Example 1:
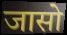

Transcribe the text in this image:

जासो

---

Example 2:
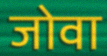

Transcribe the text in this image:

जोवा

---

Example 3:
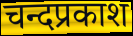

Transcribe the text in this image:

चन्दप्रकाश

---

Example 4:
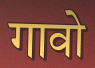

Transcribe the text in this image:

गावो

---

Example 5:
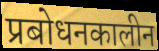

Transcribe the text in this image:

प्रबोधनकालीन